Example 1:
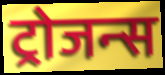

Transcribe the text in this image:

ट्रोजन्स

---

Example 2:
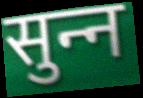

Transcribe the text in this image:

सुन्न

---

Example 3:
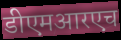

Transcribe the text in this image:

डीएमआरएच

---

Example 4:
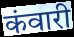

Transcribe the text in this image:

कंवारी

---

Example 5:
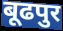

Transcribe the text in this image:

बूढपुर